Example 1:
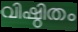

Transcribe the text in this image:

വിഷ്ഠിതം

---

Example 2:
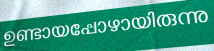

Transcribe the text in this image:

ഉണ്ടായപ്പോഴായിരുന്നു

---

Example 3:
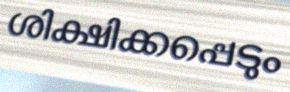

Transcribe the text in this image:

ശിക്ഷിക്കപ്പെടും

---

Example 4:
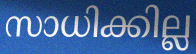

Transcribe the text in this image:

സാധിക്കില്ല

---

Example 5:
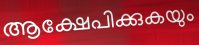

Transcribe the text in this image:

ആക്ഷേപിക്കുകയും